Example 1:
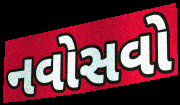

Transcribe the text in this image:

નવોસવો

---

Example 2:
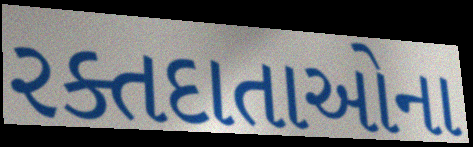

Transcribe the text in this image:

રક્તદાતાઓના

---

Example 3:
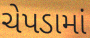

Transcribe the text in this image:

ચેપડામાં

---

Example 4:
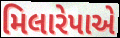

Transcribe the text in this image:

મિલારેપાએ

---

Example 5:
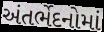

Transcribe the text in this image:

અંતર્ભેદનોમાં